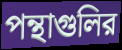
পন্থাগুলির